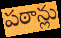
పఠాన్లు